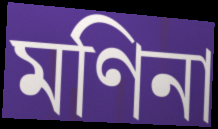
মণিনা